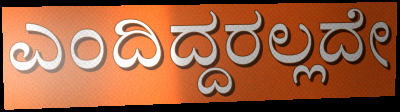
ಎಂದಿದ್ದರಲ್ಲದೇ